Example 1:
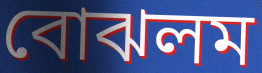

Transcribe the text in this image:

বোঝলম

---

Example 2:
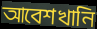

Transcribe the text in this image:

আবেশখানি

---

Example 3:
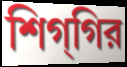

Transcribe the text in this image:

শিগ্‌গির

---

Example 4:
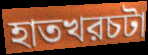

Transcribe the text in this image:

হাতখরচটা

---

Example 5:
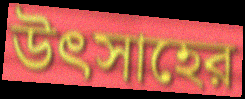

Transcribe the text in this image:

উৎসাহের